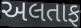
અલતાફ